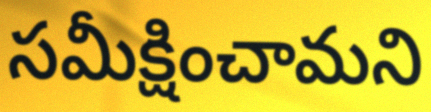
సమీక్షించామని